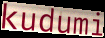
kudumi